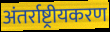
अंतर्राष्ट्रीयकरण